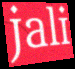
jali